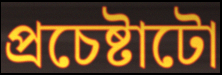
প্ৰচেষ্টাটো